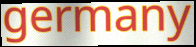
germany